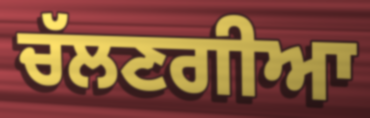
ਚੱਲਣਗੀਆ